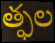
త్ఫల